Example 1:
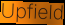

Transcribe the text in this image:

Upfield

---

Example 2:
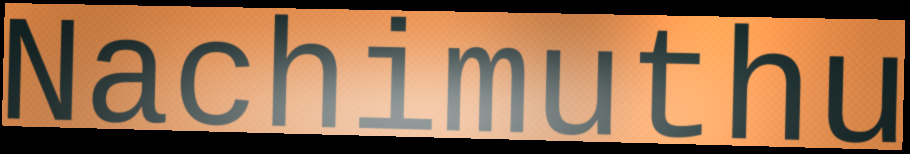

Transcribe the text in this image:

Nachimuthu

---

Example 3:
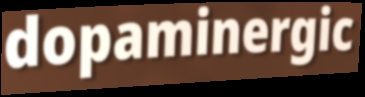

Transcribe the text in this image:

dopaminergic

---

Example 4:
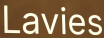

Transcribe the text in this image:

Lavies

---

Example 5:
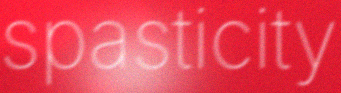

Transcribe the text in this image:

spasticity